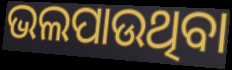
ଭଲପାଉଥିବା